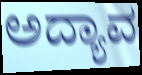
ಅದ್ಯಾವ